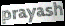
prayash